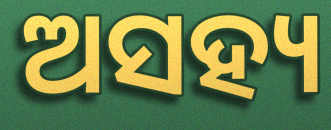
ଅସହ୍ୟ